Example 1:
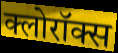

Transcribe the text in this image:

क्लोरॉक्स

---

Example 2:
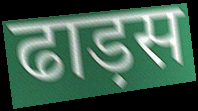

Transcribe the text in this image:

ढाड़स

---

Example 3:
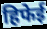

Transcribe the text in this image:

हिफेई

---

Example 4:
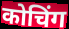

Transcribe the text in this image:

कोचिंग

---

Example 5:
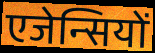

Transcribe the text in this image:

एजेन्सियों